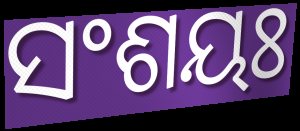
ସଂଶୟଃ